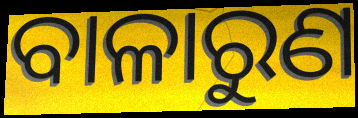
ବାଳାରୁଣ